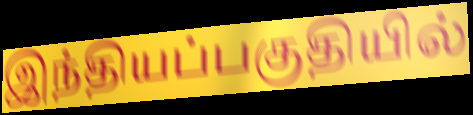
இந்தியப்பகுதியில்